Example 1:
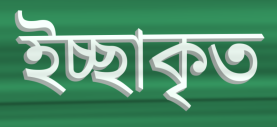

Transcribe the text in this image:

ইচ্ছাকৃত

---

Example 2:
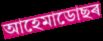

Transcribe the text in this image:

আহেমাডোছৰ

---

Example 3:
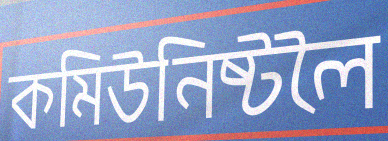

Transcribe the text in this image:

কমিউনিষ্টলৈ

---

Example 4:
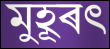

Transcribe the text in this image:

মুহূৰৎ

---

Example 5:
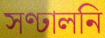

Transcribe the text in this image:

সণ্ঢালনি